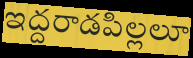
ఇద్దరాడపిల్లలూ